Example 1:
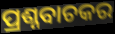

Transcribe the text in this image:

ପ୍ରଶ୍ନବାଚକର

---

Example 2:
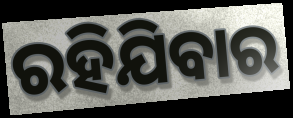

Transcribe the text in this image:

ରହିଯିବାର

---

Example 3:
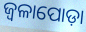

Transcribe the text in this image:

ଜ୍ୱଳାପୋଡ଼ା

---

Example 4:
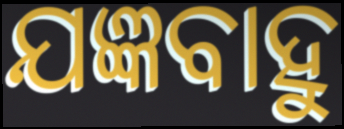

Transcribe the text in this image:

ଯଜ୍ଞବାହୁ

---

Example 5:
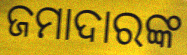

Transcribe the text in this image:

ଜମାଦାରଙ୍କ